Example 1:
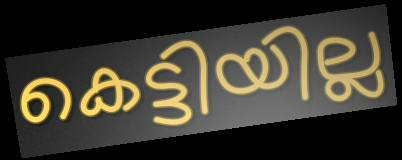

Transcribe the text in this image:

കെട്ടിയില്ല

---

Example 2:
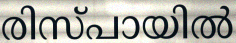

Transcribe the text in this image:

രിസ്പായിൽ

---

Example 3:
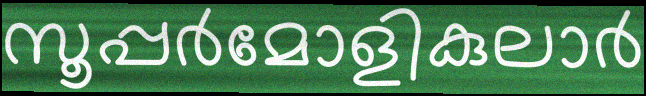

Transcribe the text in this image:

സൂപ്പർമോളികുലാർ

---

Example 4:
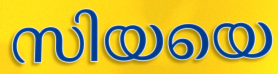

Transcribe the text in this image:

സിയയെ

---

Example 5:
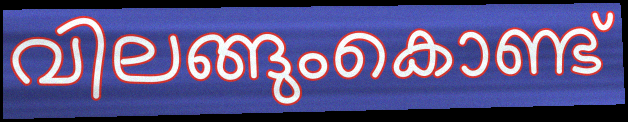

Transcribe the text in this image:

വിലങ്ങുംകൊണ്ട്